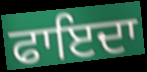
ਫਾਇਦਾ